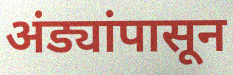
अंड्यांपासून